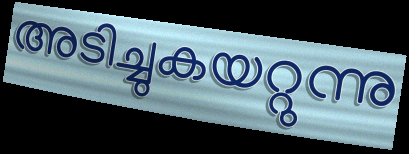
അടിച്ചുകയറ്റുന്നു